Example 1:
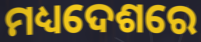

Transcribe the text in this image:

ମଧ୍ୟଦେଶରେ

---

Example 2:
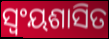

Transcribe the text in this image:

ସ୍ୱଂୟଶାସିତ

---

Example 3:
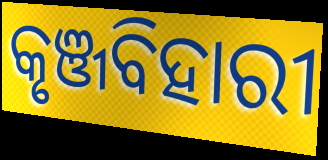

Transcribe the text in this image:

କୃଞ୍ଜବିହାରୀ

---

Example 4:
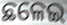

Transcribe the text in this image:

ଛଳେଇ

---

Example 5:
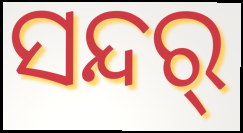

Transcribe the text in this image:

ସନ୍ଦର୍